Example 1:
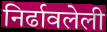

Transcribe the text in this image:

निर्ढावलेली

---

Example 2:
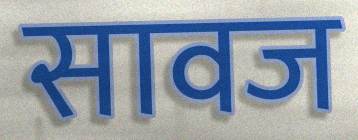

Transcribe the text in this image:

सावज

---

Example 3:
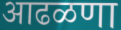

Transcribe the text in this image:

आढळणा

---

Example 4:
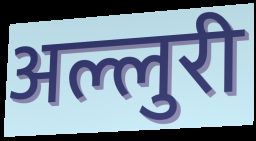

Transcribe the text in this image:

अल्लुरी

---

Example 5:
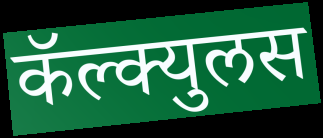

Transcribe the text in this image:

कॅल्क्युलस